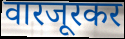
वारजूरकर